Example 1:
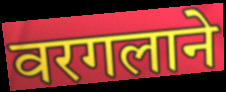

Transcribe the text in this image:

वरगलाने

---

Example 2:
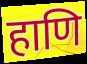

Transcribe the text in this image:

हाणि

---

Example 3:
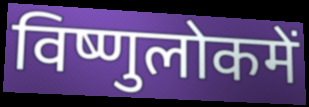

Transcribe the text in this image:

विष्णुलोकमें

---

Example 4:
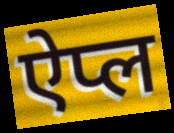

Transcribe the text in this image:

ऐप्ल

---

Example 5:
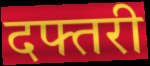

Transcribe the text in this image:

दफ्तरी